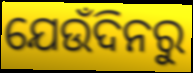
ଯେଉଁଦିନରୁ